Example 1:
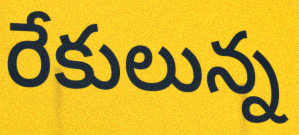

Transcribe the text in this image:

రేకులున్న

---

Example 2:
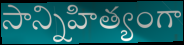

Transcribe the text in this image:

సాన్నిహిత్యంగా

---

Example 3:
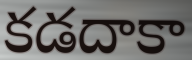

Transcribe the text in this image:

కడదాకా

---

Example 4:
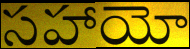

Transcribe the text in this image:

సహాయో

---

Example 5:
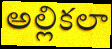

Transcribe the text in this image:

అల్లికలా